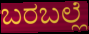
ಬರಬಲ್ಲೆ